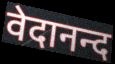
वेदानन्द